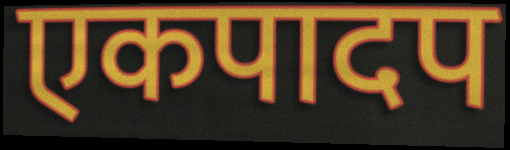
एकपादप